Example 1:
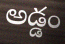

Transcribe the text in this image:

అడ్డం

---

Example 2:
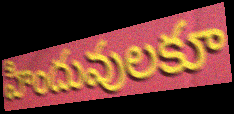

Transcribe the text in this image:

హిందువులకూ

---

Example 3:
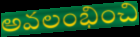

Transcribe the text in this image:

అవలంభించి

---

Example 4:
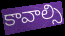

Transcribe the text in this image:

కావాల్సి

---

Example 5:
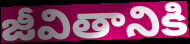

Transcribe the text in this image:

జీవితానికి